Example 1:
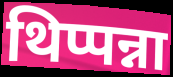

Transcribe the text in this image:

थिप्पन्ना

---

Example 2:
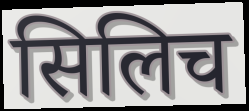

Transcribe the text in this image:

सिलिच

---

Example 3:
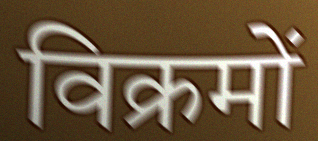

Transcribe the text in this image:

विक्रमों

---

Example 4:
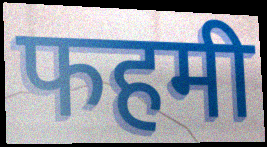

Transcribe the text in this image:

फहमी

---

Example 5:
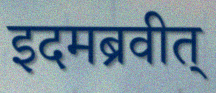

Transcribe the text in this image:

इदमब्रवीत्